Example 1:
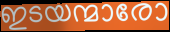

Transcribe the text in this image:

ഇടയന്മാരോ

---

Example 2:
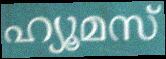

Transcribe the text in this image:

ഹ്യൂമസ്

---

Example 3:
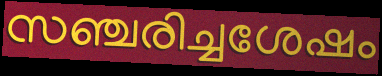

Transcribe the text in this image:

സഞ്ചരിച്ചശേഷം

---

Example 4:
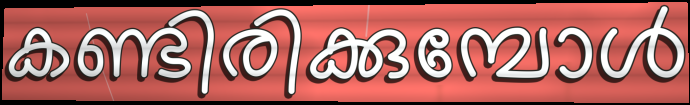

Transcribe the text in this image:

കണ്ടിരിക്കുമ്പോൾ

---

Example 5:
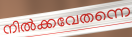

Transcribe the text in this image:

നിൽക്കവേതന്നെ